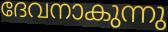
ദേവനാകുന്നു